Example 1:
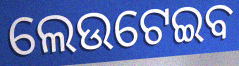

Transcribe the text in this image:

ଲେଉଟେଇବ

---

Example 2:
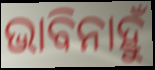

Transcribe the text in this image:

ଭାବିନାହୁଁ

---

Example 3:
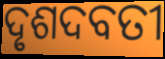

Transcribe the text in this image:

ଦୃଶଦବତୀ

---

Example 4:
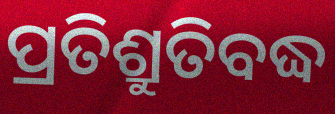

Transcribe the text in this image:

ପ୍ରତିଶ୍ରୁତିବଦ୍ଧ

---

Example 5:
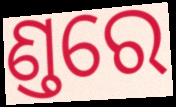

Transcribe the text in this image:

ଣ୍ଡରେ